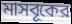
মাসবূকের